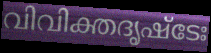
വിവിക്തദൃഷ്ടേഃ